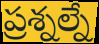
ప్రశ్నల్నే